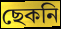
ছেকনি